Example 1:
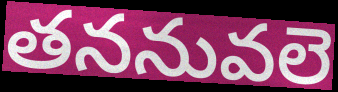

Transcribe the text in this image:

తననువలె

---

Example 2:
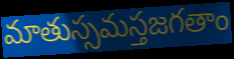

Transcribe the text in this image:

మాతుస్సమస్తజగతాం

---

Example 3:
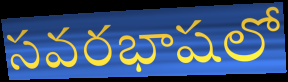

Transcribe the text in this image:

సవరభాషలో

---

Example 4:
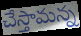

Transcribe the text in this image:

చేస్తామన్న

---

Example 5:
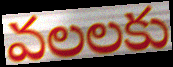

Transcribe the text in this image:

వలలకు